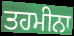
ਤਹਮੀਨਾ